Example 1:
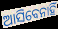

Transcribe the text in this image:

ଆସିବେନାହିଁ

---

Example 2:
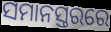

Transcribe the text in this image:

ସମାନସ୍ତରରେ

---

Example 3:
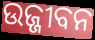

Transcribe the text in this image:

ଉଜ୍ଜୀବନ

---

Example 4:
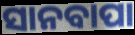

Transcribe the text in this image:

ସାନବାପା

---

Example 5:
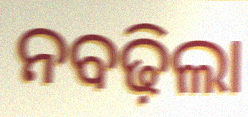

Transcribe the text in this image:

ନବଢ଼ିଲା